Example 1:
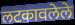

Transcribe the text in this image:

लटकावलेले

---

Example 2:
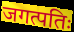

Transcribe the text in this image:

जगत्पतिः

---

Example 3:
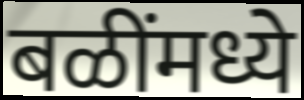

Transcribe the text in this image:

बळींमध्ये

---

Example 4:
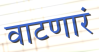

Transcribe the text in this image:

वाटणारं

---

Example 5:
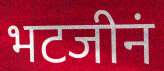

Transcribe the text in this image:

भटजीनं